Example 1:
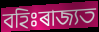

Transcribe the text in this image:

বহিঃৰাজ্যত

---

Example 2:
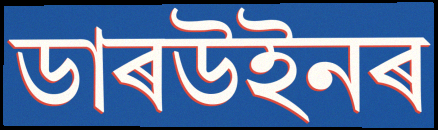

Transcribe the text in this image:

ডাৰউইনৰ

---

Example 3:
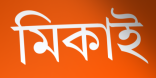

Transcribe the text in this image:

মিকাই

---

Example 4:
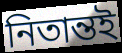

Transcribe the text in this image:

নিতান্তই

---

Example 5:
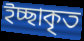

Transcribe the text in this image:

ইচ্ছাকৃত